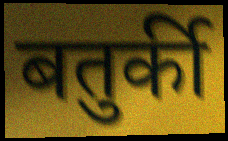
बतुर्की